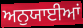
ਅਨੁਯਾਈਆਂ